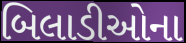
બિલાડીઓના